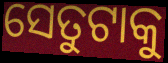
ସେତୁଟାକୁ